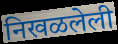
निखळलेली